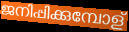
ജനിപ്പിക്കുമ്പോള്